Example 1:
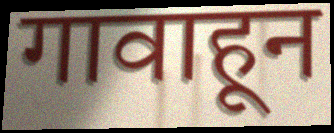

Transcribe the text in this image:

गावाहून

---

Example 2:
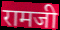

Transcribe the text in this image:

रामजी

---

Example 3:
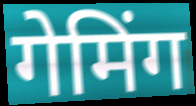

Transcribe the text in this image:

गेमिंग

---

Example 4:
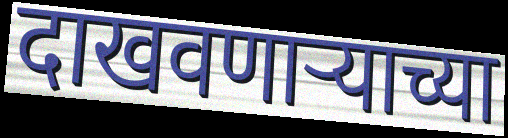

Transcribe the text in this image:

दाखवणाऱ्याच्या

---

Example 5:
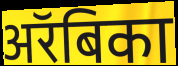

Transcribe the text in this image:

अरॅबिका